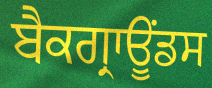
ਬੈਕਗ੍ਰਾਊਂਡਸ